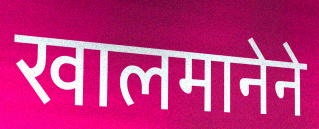
खालमानेने